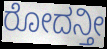
ರೋದನ್ತೀ